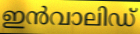
ഇൻവാലിഡ്